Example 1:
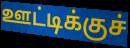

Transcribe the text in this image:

ஊட்டிக்குச்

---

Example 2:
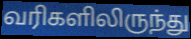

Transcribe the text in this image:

வரிகளிலிருந்து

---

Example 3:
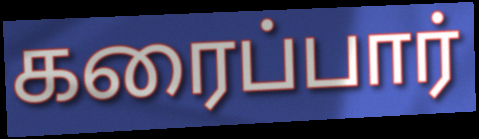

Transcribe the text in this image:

கரைப்பார்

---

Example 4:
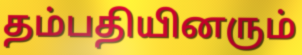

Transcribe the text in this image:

தம்பதியினரும்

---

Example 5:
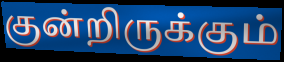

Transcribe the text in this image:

குன்றிருக்கும்